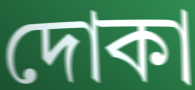
দোকা